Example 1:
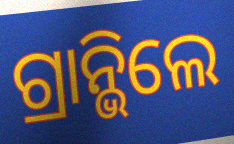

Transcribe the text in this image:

ଗ୍ରାନ୍ଭିଲେ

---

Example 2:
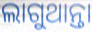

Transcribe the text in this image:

ଲାଗୁଥାନ୍ତା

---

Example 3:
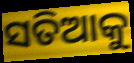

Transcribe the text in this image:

ସତିଆକୁ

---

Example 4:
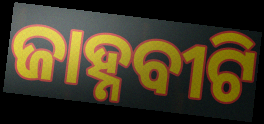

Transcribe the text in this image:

ଜାହ୍ନବୀଟି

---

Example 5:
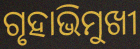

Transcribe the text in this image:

ଗୃହାଭିମୁଖୀ